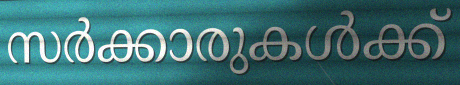
സർക്കാരുകൾക്ക്